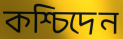
কশ্চিদেন